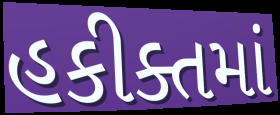
હકીક્તમાં